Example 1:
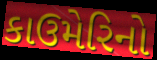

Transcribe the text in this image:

કાઉમેરિનો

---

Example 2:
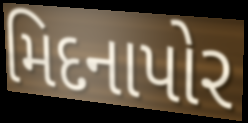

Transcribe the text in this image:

મિદનાપોર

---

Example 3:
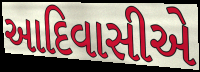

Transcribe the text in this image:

આદિવાસીએ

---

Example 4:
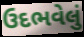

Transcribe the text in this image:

ઉદભવેલું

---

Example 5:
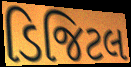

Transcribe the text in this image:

ડિજિટલ